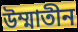
উম্মাতীন